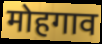
मोहगाव